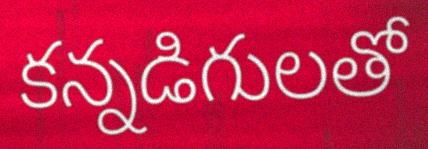
కన్నడిగులతో